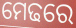
ମେଢରେ